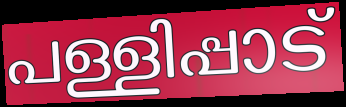
പള്ളിപ്പാട്